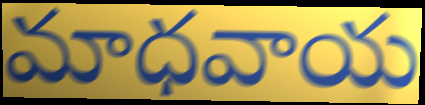
మాధవాయ